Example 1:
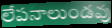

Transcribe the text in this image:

లేపనాలుండవు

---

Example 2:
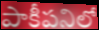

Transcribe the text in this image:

పాకీపనిలో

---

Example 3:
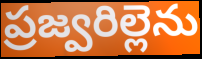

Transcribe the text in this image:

ప్రజ్వరిల్లెను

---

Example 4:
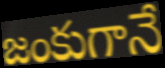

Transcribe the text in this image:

జంకుగానే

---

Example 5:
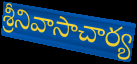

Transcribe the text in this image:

శ్రీనివాసాచార్య